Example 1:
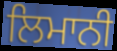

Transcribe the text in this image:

ਲਿਮਾਨੀ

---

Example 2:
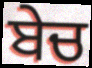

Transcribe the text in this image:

ਬੇਚ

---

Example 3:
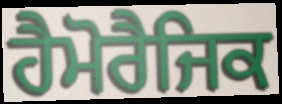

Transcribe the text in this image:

ਹੈਮੋਰੈਜਿਕ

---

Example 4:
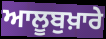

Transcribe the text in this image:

ਆਲੂਬੁਖ਼ਾਰੇ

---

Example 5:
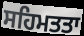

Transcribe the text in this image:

ਸਹਿਮਤਤਾ